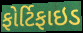
ફોર્ટિફાઇડ